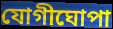
যোগীঘোপা